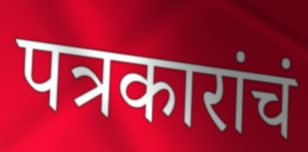
पत्रकारांचं